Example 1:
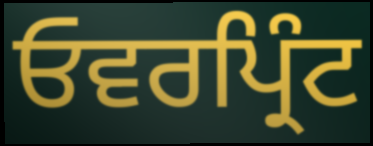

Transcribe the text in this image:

ਓਵਰਪ੍ਰਿੰਟ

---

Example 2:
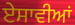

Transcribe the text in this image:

ਏਸਾਵੀਆਂ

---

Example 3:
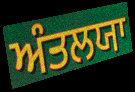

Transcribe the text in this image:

ਅੰਤਲਯਾ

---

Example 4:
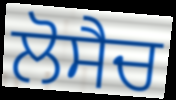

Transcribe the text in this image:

ਲੋਸੈਚ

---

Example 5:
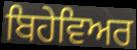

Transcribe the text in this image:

ਬਿਹੇਵਿਅਰ